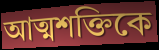
আত্মশক্তিকে